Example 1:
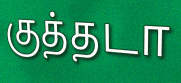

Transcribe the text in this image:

குத்தடா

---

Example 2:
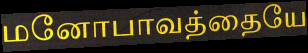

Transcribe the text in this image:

மனோபாவத்தையே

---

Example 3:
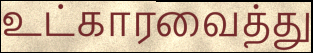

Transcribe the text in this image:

உட்காரவைத்து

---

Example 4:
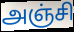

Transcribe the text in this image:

அஞ்சி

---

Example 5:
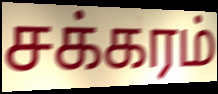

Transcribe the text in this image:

சக்கரம்